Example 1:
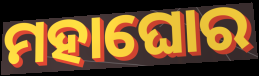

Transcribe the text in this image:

ମହାଘୋର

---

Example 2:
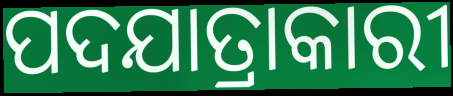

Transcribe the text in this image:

ପଦଯାତ୍ରାକାରୀ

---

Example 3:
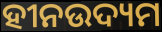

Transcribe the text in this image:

ହୀନଉଦ୍ୟମ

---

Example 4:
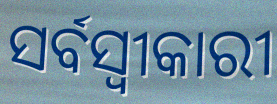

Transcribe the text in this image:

ସର୍ବସ୍ଵୀକାରୀ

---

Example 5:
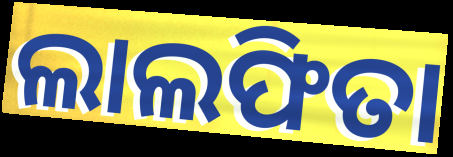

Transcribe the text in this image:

ଲାଲଫିତା